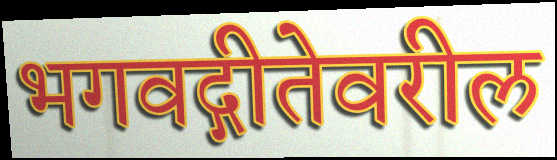
भगवद्गीतेवरील